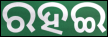
ରହଇ